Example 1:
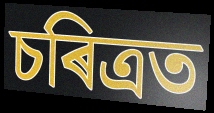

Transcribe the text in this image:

চৰিত্ৰত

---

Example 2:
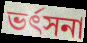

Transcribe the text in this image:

ভৰ্ৎসনা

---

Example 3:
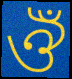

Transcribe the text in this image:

ঔঁ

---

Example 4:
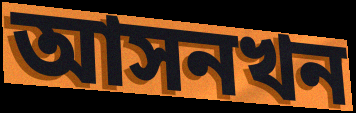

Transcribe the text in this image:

আসনখন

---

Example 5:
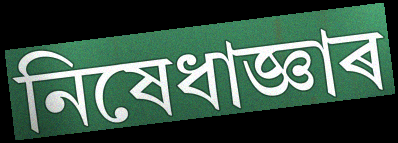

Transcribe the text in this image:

নিষেধাজ্ঞাৰ